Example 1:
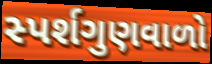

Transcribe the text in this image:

સ્પર્શગુણવાળો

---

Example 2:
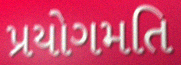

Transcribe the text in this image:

પ્રયોગમતિ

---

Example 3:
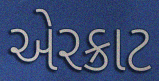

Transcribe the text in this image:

એરક્રાટ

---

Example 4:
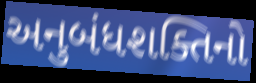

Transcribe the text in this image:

અનુબંધશક્તિનો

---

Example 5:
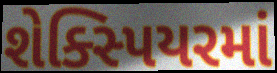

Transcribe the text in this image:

શેક્સ્પિયરમાં